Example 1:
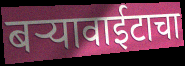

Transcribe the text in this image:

बऱ्यावाईटाचा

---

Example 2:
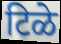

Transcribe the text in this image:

टिळे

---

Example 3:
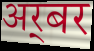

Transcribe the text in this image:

अर्बर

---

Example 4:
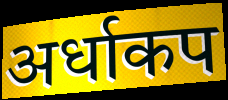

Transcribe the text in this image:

अर्धाकप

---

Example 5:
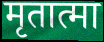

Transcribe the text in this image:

मृतात्मा